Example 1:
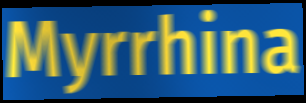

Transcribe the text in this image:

Myrrhina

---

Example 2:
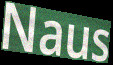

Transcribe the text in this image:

Naus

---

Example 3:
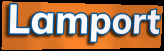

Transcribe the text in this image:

Lamport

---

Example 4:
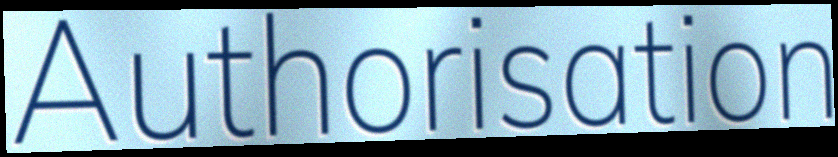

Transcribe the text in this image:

Authorisation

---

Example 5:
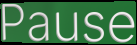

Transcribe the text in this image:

Pause